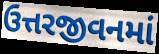
ઉત્તરજીવનમાં